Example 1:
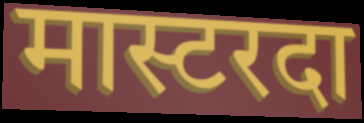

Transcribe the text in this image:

मास्टरदा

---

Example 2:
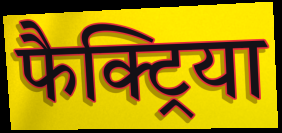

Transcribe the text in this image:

फैक्ट्रिया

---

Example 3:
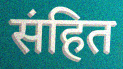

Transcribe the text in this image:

संहित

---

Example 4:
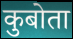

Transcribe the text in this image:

कुबोता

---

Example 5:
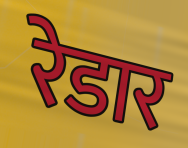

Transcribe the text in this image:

रेडार